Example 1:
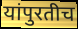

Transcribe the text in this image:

यांपुरतीच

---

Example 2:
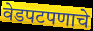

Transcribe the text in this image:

वेडपटपणाचे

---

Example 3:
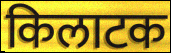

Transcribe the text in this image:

किलाटक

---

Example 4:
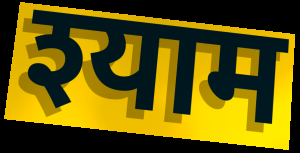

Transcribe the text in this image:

श्याम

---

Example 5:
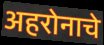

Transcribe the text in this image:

अहरोनाचे